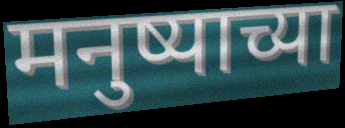
मनुष्याच्या